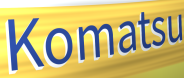
Komatsu